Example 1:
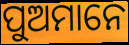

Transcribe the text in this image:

ପୁଅମାନେ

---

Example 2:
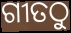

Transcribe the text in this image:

ଗୀତଠୁ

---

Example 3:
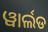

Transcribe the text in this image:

ୱାର୍ଲଡ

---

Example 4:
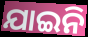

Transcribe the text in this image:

ଯାଇନି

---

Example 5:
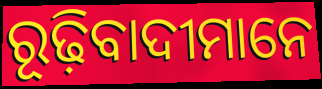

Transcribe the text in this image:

ରୂଢ଼ିବାଦୀମାନେ